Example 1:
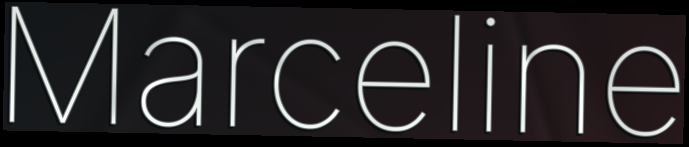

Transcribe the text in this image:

Marceline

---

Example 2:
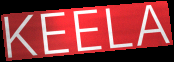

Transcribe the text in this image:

KEELA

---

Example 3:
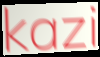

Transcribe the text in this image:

kazi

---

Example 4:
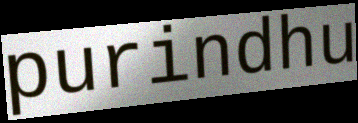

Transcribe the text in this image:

purindhu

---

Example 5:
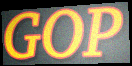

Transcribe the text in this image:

GOP